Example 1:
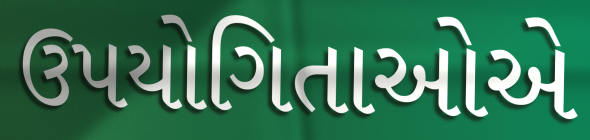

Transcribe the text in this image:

ઉપયોગિતાઓએ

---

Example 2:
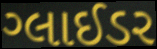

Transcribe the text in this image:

ગ્લાઈડર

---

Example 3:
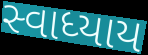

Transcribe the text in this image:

સ્વાધ્યાય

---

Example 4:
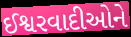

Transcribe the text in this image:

ઈશ્વરવાદીઓને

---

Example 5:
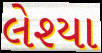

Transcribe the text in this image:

લેશ્યા